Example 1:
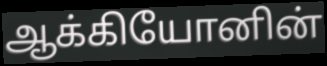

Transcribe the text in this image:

ஆக்கியோனின்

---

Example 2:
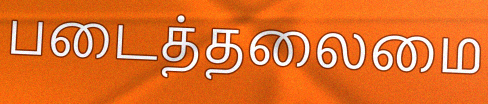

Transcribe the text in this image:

படைத்தலைமை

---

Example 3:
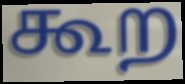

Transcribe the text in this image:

கூற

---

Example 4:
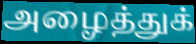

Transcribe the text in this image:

அழைத்துக்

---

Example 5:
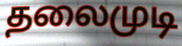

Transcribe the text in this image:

தலைமுடி